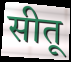
सीतू